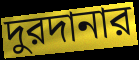
দুরদানার